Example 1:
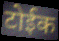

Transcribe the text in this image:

टोईक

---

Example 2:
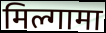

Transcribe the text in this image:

मिल्गामा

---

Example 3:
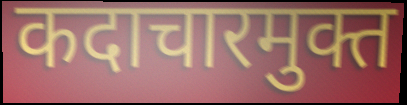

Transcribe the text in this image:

कदाचारमुक्त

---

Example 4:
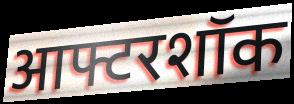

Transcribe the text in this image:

आफ्टरशॉक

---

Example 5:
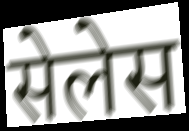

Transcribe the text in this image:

सेलेस